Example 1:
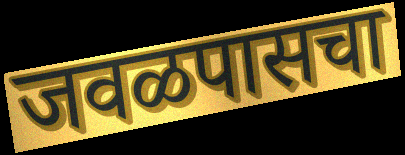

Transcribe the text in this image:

जवळपासचा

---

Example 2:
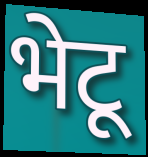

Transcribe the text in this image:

भेटू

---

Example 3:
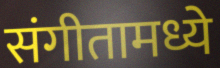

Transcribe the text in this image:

संगीतामध्ये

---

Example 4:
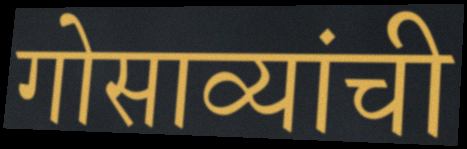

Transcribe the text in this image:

गोसाव्यांची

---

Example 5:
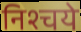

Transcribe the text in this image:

निश्चये